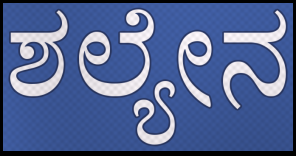
ಶಲ್ಯೇನ